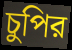
চুপির